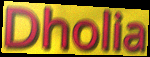
Dholia